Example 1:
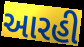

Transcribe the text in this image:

આરહી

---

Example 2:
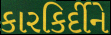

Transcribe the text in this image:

કારકિર્દીને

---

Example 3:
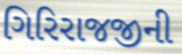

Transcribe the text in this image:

ગિરિરાજજીની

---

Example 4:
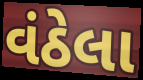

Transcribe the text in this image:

વંઠેલા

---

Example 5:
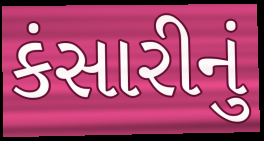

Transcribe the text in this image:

કંસારીનું